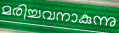
മരിച്ചവനാകുന്നു